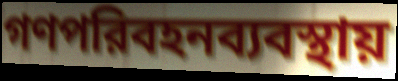
গণপরিবহনব্যবস্থায়